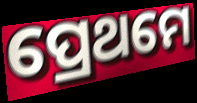
ପ୍ରେଥମେ